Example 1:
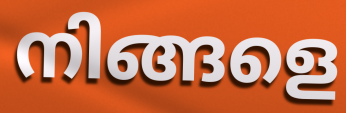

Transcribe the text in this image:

നിങ്ങളെ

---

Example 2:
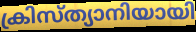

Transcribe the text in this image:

ക്രിസ്ത്യാനിയായി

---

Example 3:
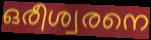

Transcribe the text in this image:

ഒരീശ്വരനെ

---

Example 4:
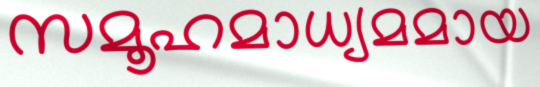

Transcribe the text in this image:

സമൂഹമാധ്യമമായ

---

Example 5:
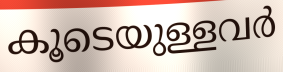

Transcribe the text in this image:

കൂടെയുള്ളവർ